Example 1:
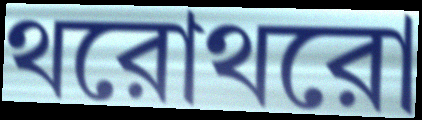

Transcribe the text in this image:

থরোথরো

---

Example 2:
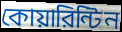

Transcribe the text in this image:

কোয়ারিন্টিন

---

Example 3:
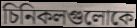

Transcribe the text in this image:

চিনিকলগুলোকে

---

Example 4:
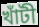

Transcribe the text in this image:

খাঁটী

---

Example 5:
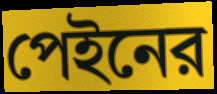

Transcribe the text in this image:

পেইনের